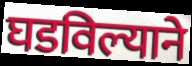
घडविल्याने